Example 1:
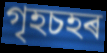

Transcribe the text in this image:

গৃহচহৰ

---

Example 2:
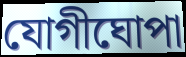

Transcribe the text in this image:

যোগীঘোপা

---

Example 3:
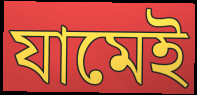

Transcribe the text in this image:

যামেই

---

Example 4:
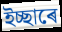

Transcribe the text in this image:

ইচ্ছাৰে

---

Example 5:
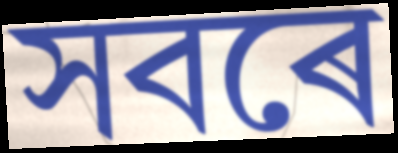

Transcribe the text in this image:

সবৰে